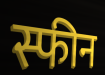
स्फीन